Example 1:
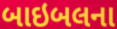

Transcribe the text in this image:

બાઇબલના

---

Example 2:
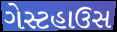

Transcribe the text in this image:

ગેસ્ટહાઉસ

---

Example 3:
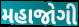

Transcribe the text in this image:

મહાજોગી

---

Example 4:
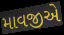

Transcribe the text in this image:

માવજીએ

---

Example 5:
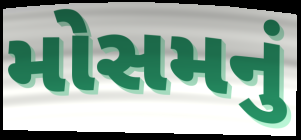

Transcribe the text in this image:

મોસમનું